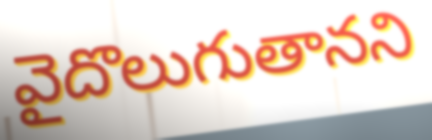
వైదొలుగుతానని